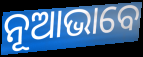
ନୂଆଭାବେ